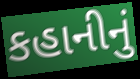
કહાનીનું